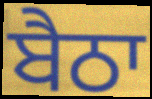
ਬੈਠਾ